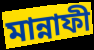
মান্নাফী